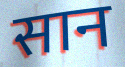
सान